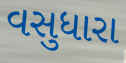
વસુધારા